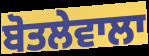
ਬੋਤਲੇਵਾਲਾ